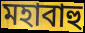
মহাবাহু